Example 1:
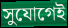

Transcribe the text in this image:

সুযোগেই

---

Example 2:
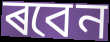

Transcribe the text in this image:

ৰবেন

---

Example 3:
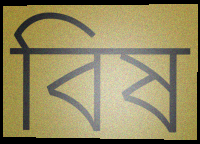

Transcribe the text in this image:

বিষ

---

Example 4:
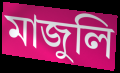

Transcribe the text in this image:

মাজুলি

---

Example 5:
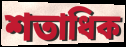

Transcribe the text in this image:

শতাধিক